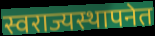
स्वराज्यस्थापनेत